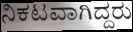
ನಿಕಟವಾಗಿದ್ದರು